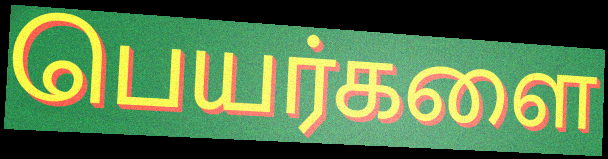
பெயர்களை